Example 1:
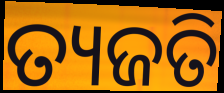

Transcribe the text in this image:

ତ୍ୟଜତି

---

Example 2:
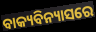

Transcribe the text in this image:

ବାକ୍ୟବିନ୍ୟାସରେ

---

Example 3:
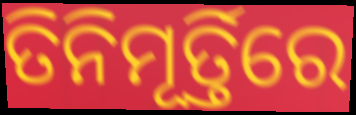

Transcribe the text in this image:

ତିନିମୂର୍ତ୍ତିରେ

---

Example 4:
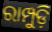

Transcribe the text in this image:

ରାମ୍ପୁଡ଼ି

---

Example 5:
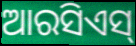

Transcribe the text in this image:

ଆରସିଏସ୍